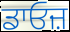
ਡਾਓਜ਼